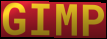
GIMP